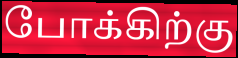
போக்கிற்கு